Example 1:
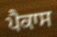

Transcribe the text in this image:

ਪੈਕਾਸ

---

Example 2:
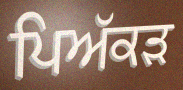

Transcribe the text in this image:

ਪਿਅੱਕੜ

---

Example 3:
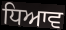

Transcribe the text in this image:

ਧਿਆਵ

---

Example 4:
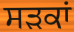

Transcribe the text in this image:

ਸਡ਼ਕਾਂ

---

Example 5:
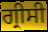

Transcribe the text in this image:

ਗ੍ਰੀਸੀ